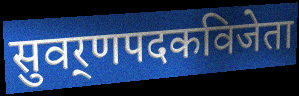
सुवर्णपदकविजेता